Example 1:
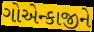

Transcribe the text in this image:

ગોએન્કાજીને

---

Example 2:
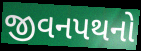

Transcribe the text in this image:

જીવનપથનો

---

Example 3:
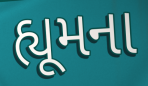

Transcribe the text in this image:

હ્યૂમના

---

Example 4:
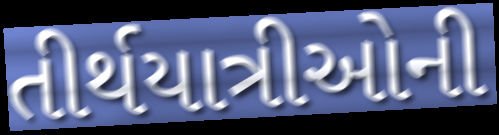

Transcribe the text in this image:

તીર્થયાત્રીઓની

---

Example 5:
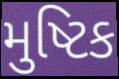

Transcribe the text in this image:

મુષ્ટિક